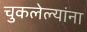
चुकलेल्यांना